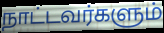
நாட்டவர்களும்